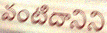
వంటిదానిని